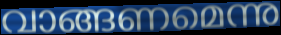
വാങ്ങണമെന്നു